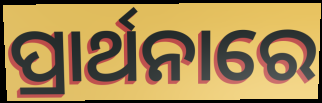
ପ୍ରାର୍ଥନାରେ